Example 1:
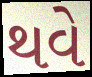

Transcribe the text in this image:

થવે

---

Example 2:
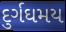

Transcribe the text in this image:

દુર્ગઘમય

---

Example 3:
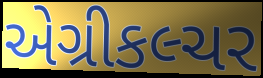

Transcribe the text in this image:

એગ્રીકલ્ચર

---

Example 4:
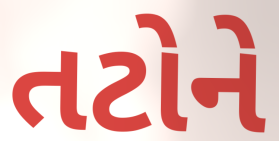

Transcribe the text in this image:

તટોને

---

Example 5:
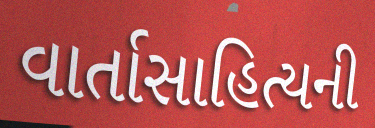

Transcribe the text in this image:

વાર્તાસાહિત્યની